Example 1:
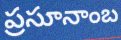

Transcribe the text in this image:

ప్రసూనాంబ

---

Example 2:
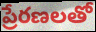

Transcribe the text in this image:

ప్రేరణలతో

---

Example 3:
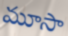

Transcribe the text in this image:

మూసా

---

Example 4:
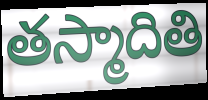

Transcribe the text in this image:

తస్మాదితి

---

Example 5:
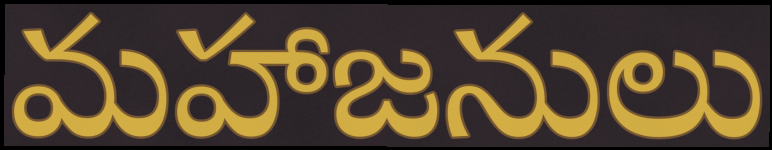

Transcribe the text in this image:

మహాజనులు